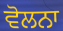
ਵੋਲਨਾ